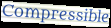
Compressible